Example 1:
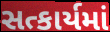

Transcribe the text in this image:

સત્કાર્યમાં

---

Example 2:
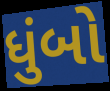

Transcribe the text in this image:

ધુંબો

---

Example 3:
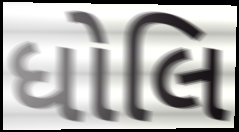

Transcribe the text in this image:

ધોલિ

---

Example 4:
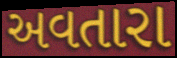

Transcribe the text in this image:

અવતારા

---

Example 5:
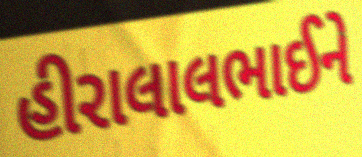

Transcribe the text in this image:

હીરાલાલભાઈને